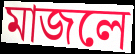
মাজলে